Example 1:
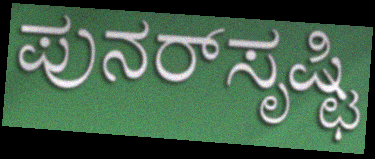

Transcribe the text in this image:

ಪುನರ್‌ಸೃಷ್ಟಿ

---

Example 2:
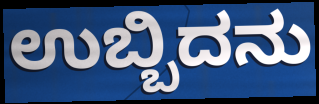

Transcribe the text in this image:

ಉಬ್ಬಿದನು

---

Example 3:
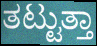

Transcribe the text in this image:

ತಟ್ಟುತ್ತಾ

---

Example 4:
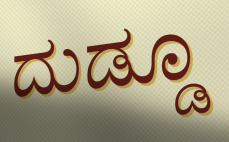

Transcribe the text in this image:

ದುಡ್ಡೂ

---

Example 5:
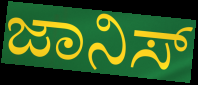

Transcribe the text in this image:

ಜಾನಿಸ್